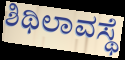
ಶಿಥಿಲಾವಸ್ಥೆ